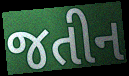
જતીન